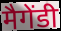
मैगेंडी